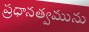
ప్రధానత్వమును